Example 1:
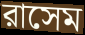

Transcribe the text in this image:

রাসেম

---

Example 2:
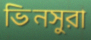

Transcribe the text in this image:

ভিনসুরা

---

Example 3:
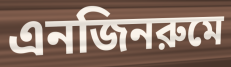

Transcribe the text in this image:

এনজিনরুমে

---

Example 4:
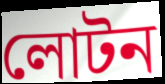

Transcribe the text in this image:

লোটন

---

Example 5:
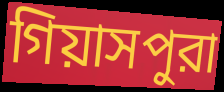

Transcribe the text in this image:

গিয়াসপুরা